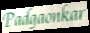
Padgaonkar